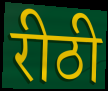
रीठी